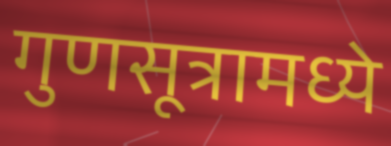
गुणसूत्रामध्ये